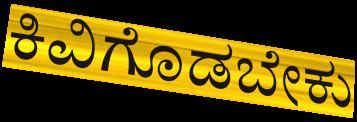
ಕಿವಿಗೊಡಬೇಕು